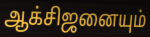
ஆக்சிஜனையும்